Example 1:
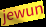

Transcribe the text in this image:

jewun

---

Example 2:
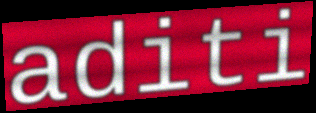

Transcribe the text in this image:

aditi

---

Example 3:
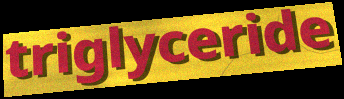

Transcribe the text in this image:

triglyceride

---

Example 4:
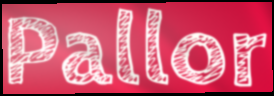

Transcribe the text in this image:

Pallor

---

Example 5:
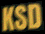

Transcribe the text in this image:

KSD